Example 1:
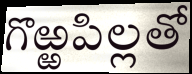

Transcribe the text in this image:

గొఱ్ఱపిల్లతో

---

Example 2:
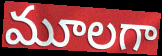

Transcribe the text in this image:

మూలగా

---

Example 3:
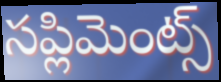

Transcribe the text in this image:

సప్లిమెంట్స్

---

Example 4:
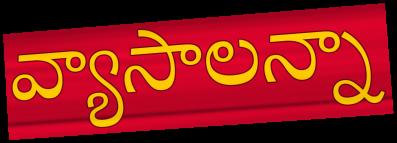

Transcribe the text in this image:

వ్యాసాలన్నా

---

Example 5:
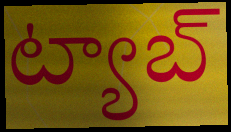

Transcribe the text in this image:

ట్యాబ్